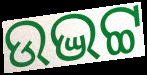
ଉଦ୍ଭଟ୍ଟ